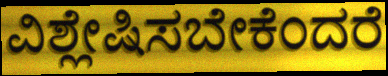
ವಿಶ್ಲೇಷಿಸಬೇಕೆಂದರೆ